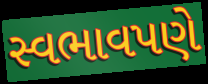
સ્વભાવપણે